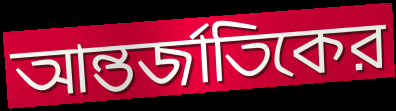
আন্তর্জাতিকের